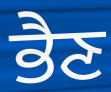
ਭੈਣ